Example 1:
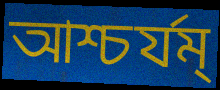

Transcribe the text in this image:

আশ্চর্যম্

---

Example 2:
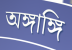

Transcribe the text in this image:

অঙ্গাঙ্গি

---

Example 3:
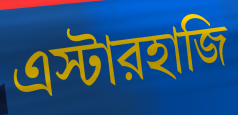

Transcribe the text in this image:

এস্টারহাজি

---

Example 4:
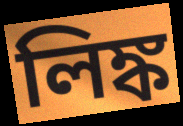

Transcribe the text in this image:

লিঙ্ক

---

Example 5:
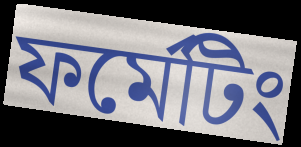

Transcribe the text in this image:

ফর্মেটিং